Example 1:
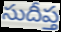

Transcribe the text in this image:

సుదీప్త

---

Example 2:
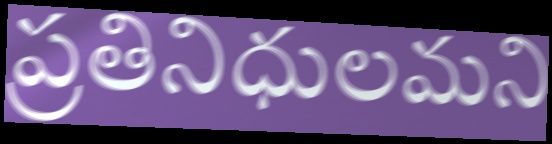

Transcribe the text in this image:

ప్రతినిధులమని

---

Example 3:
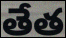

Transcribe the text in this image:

తేత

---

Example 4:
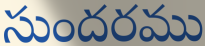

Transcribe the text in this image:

సుందరము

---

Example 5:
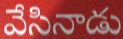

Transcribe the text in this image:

వేసినాడు